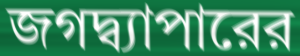
জগদ্ব্যাপারের